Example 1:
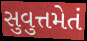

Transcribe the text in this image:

સુવુત્તમેતં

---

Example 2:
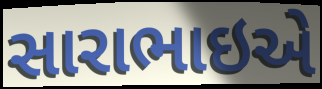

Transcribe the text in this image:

સારાભાઇએ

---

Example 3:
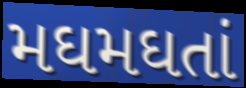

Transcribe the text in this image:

મઘમઘતાં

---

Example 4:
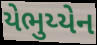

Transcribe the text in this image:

યેભુય્યેન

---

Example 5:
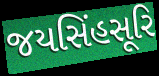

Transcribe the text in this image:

જયસિંહસૂરિ